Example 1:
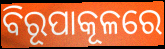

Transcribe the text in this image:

ବିରୂପାକୂଳରେ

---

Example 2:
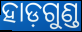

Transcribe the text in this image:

ହାଡ଼ଗୁଣ୍ଡ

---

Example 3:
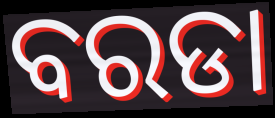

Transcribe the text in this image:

ବରଡା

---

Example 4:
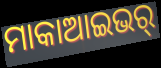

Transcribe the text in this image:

ମାକାଆଇଭର୍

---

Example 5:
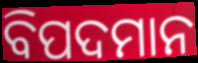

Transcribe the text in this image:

ବିପଦମାନ